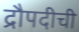
द्रौपदीची